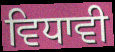
ਵਿਧਾਵੀ